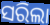
ସରିଲା